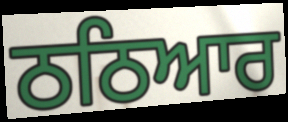
ਠਠਿਆਰ